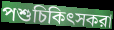
পশুচিকিৎসকরা